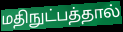
மதிநுட்பத்தால்